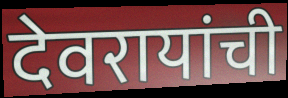
देवरायांची